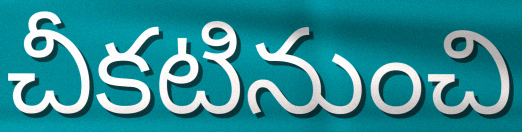
చీకటినుంచి